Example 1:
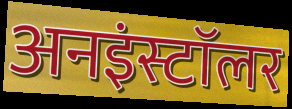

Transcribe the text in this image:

अनइंस्टॉलर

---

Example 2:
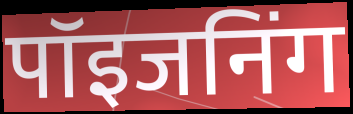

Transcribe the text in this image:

पॉइजनिंग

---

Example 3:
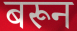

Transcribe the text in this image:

बरून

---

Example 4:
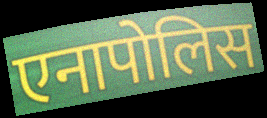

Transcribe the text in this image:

एनापोलिस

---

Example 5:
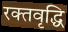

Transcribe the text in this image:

रक्तवृद्धि